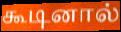
கூடினால்